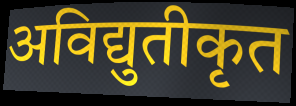
अविद्युतीकृत